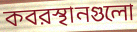
কবরস্থানগুলো